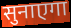
सुनाएगा